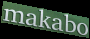
makabo